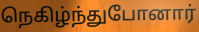
நெகிழ்ந்துபோனார்